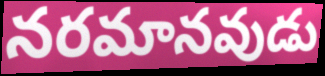
నరమానవుడు